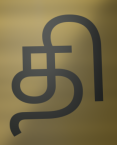
தி